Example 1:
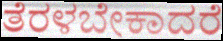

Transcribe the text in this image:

ತೆರಳಬೇಕಾದರೆ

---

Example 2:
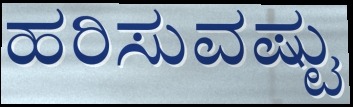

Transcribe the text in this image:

ಹರಿಸುವಷ್ಟು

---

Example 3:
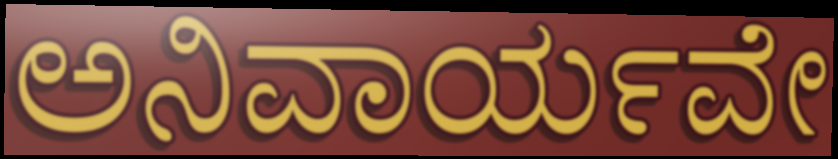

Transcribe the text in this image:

ಅನಿವಾರ್ಯವೇ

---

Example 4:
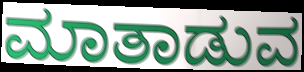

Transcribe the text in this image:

ಮಾತಾಡುವ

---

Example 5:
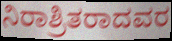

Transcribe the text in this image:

ನಿರಾಶ್ರಿತರಾದವರ